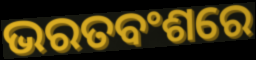
ଭରତବଂଶରେ